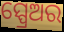
ସ୍ପ୍ରେଅର